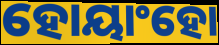
ହୋୟାଂହୋ